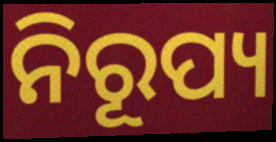
ନିରୂପ୍ୟ